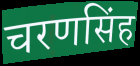
चरणसिंह